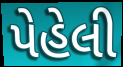
પેહેલી